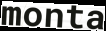
monta